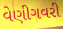
વેણીગવરી